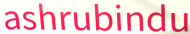
ashrubindu